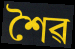
শৈৱ